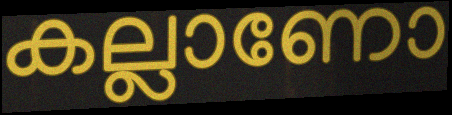
കല്ലാണോ